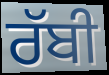
ਰੱਬੀ